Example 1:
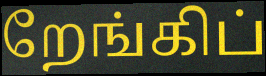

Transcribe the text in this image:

றேங்கிப்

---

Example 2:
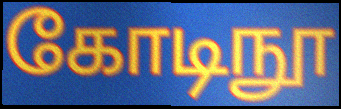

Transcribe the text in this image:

கோடிநூ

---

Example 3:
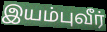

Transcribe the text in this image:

இயம்புவீர்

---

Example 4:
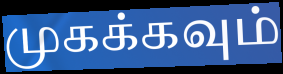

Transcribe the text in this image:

முகக்கவும்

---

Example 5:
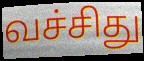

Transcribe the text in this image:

வச்சிது